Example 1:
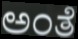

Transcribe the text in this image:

ಅಂತೆ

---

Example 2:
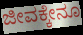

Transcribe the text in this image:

ಜೀವಕ್ಕೇನೂ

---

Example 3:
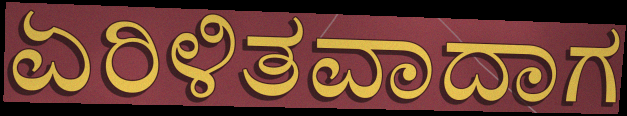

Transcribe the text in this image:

ಏರಿಳಿತವಾದಾಗ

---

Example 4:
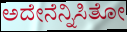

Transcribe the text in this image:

ಅದೇನೆನ್ನಿಸಿತೋ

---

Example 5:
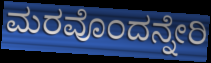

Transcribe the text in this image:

ಮರವೊಂದನ್ನೇರಿ